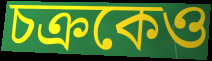
চক্রকেও